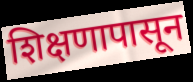
शिक्षणापासून